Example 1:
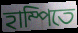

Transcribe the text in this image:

হাম্পিতে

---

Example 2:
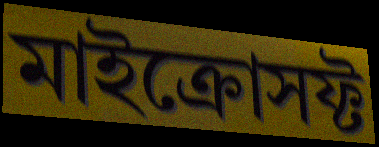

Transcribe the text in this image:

মাইক্রোসফ্ট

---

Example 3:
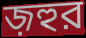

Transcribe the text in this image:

জ়হুর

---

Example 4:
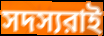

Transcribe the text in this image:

সদস্যরাই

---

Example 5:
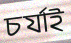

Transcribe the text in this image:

চর্যাই